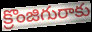
క్రొంజిగురాకు